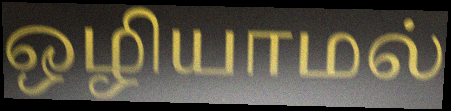
ஒழியாமல்